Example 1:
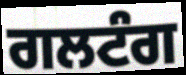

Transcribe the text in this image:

ਗਲਟੰਗ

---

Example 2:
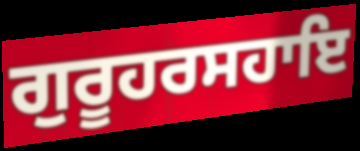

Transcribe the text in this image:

ਗੁਰੂਹਰਸਹਾਇ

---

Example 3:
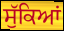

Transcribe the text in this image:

ਸੁੱਕਿਆਂ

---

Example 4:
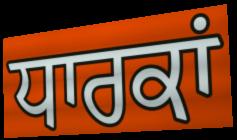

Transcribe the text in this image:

ਧਾਰਕਾਂ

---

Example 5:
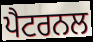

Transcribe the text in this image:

ਪੈਟਰਨਲ